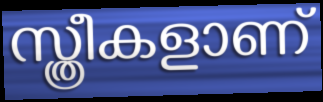
സ്ത്രീകളാണ്